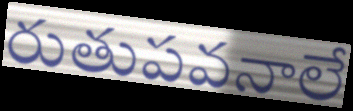
రుతుపవనాలే